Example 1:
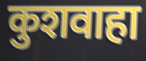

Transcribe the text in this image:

कुशवाहा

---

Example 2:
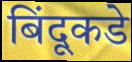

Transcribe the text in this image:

बिंदूकडे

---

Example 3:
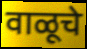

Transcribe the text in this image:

वाळूचे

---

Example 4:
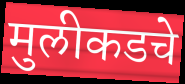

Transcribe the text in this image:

मुलीकडचे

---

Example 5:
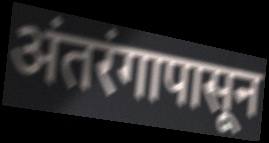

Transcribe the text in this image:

अंतरंगापासून